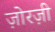
ज़ोरज़ी